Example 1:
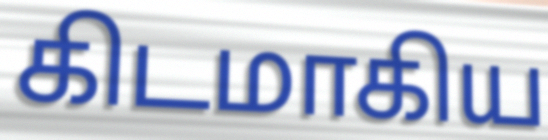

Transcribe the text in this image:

கிடமாகிய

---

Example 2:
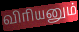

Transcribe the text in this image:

விரியனும்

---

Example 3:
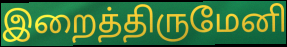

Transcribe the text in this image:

இறைத்திருமேனி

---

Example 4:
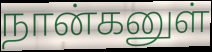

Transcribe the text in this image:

நான்கனுள்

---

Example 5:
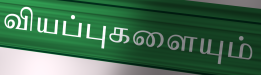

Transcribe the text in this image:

வியப்புகளையும்